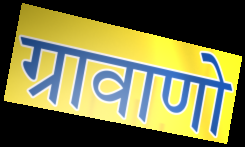
ग्रावाणो